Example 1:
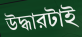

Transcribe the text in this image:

উদ্ধারটাই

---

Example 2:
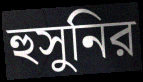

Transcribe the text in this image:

হুসুনির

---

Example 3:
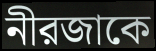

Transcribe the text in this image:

নীরজাকে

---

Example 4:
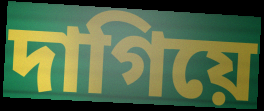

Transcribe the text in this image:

দাগিয়ে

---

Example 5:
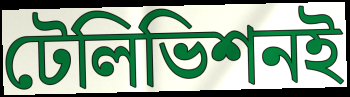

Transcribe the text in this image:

টেলিভিশনই